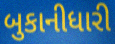
બુકાનીધારી